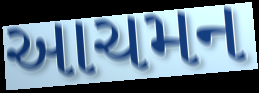
આચમન